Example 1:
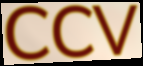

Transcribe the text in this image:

CCV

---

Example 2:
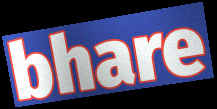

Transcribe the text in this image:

bhare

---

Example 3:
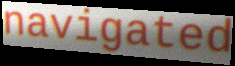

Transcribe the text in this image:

navigated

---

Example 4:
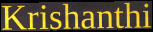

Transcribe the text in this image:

Krishanthi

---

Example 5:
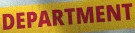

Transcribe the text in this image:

DEPARTMENT